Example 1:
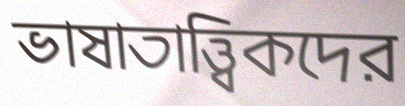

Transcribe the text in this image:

ভাষাতাত্ত্বিকদের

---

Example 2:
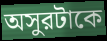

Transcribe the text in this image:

অসুরটাকে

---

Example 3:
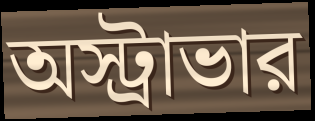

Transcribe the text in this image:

অস্ট্রাভার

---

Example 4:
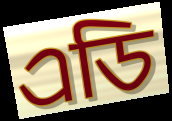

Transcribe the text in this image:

এডি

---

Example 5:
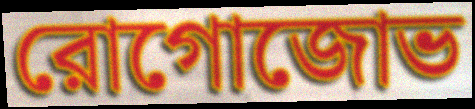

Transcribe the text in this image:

রোগোজোভ